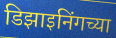
डिझाइनिंगच्या